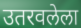
उतरवलेला